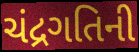
ચંદ્રગતિની